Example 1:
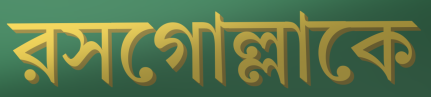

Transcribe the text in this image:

রসগোল্লাকে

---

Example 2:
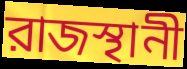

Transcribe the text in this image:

রাজস্থানী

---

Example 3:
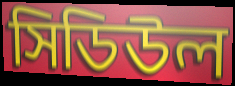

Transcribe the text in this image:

সিডিউল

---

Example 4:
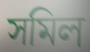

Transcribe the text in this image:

সমিল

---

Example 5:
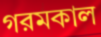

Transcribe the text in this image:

গরমকাল